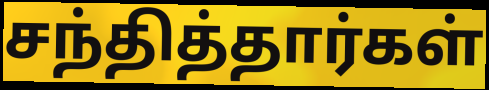
சந்தித்தார்கள்